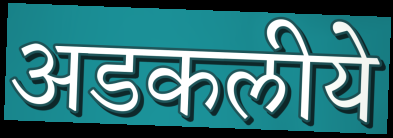
अडकलीये